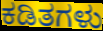
ಕಡಿತಗಳು